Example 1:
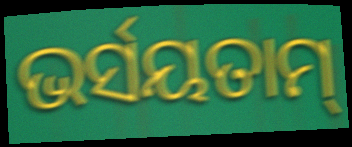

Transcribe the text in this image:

ଭର୍ସୟତାମ୍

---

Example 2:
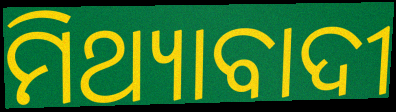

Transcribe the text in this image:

ମିଥ୍ୟାବାଦୀ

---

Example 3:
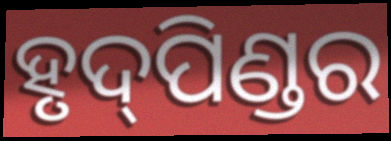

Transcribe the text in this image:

ହୃଦ୍‌ପିଣ୍ଡର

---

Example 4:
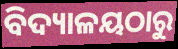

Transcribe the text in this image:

ବିଦ୍ୟାଳୟଠାରୁ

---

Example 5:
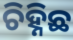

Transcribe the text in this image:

ଚିହ୍ନିଛ